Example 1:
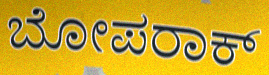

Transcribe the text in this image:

ಬೋಪರಾಕ್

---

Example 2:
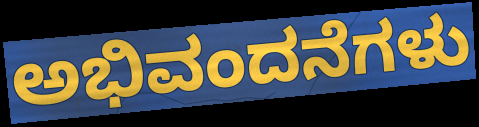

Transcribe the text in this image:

ಅಭಿವಂದನೆಗಳು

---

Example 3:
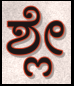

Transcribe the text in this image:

ಶ್ಲೇ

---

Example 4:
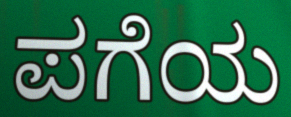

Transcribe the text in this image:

ಪಗೆಯ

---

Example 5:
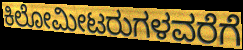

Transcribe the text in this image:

ಕಿಲೋಮೀಟರುಗಳವರೆಗೆ